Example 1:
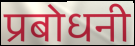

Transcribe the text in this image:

प्रबोधनी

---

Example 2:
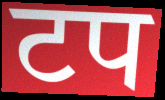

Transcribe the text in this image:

टप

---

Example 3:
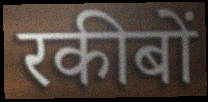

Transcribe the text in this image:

रकीबों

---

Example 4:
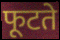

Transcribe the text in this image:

फूटते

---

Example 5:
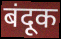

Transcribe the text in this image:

बंदूक